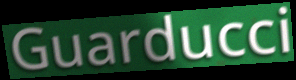
Guarducci